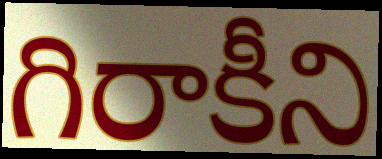
గిరాకీని